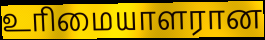
உரிமையாளரான